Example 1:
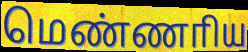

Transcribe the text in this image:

மெண்ணரிய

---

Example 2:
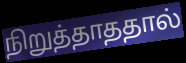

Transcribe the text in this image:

நிறுத்தாததால்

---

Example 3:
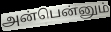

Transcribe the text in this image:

அன்பென்னும்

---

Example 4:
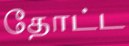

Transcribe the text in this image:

தோட்ட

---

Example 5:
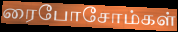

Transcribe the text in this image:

ரைபோசோம்கள்